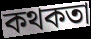
কথকতা